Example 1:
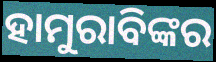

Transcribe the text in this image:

ହାମୁରାବିଙ୍କର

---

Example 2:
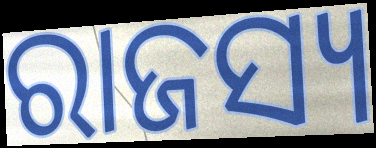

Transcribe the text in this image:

ରାଜସ୍ୟ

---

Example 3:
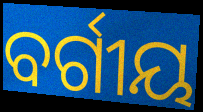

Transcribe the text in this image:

ବର୍ଗୀୟ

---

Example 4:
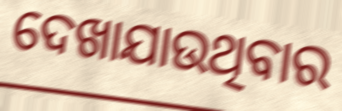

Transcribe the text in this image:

ଦେଖାଯାଉଥିବାର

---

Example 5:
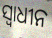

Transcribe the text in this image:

ସ୍ବାଧୀନ